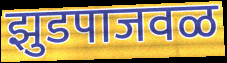
झुडपाजवळ